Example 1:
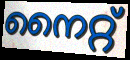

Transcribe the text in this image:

നൈറ്റ്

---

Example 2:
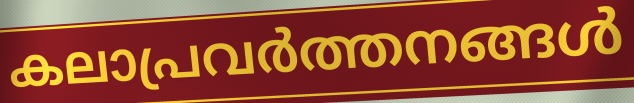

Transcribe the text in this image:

കലാപ്രവർത്തനങ്ങൾ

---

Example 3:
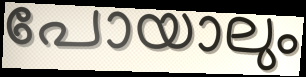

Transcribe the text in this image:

പോയാലും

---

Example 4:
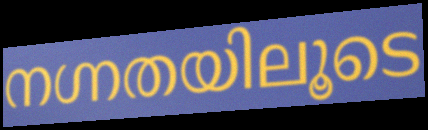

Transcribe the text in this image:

നഗ്നതയിലൂടെ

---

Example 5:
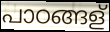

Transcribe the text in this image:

പാഠങ്ങള്